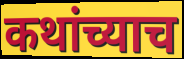
कथांच्याच